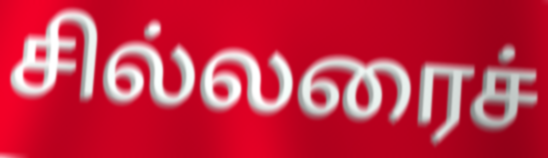
சில்லரைச்